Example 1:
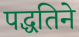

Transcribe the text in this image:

पद्धतिने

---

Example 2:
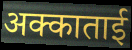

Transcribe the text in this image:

अक्काताई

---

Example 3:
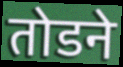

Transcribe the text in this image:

तोडने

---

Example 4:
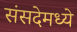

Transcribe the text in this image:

संसदेमध्ये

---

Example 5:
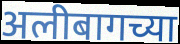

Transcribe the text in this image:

अलीबागच्या